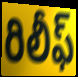
రిలీఫ్